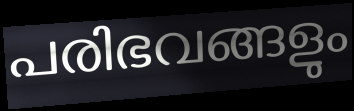
പരിഭവങ്ങളും